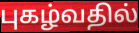
புகழ்வதில்